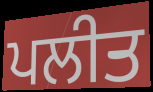
ਪਲੀਤ